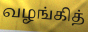
வழங்கித்